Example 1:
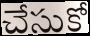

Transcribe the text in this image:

చేసుకో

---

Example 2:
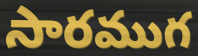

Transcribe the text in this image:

సారముగ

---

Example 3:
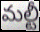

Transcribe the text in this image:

మల్టీ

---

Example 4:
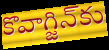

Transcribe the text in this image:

కొవాగ్జిన్‌కు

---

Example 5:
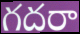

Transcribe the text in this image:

గదరా